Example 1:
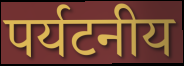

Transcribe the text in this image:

पर्यटनीय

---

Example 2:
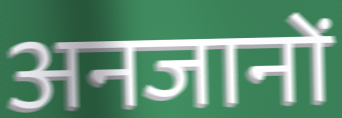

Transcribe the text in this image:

अनजानों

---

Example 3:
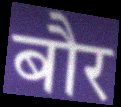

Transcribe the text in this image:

बौर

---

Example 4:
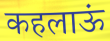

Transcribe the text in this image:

कहलाऊं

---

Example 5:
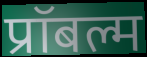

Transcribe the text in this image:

प्रॉबल्म